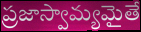
ప్రజాస్వామ్యమైతే